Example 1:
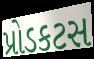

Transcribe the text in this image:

પ્રોડકટસ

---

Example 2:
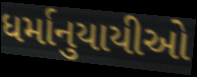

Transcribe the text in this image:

ધર્માનુયાયીઓ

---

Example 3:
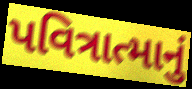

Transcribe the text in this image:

પવિત્રાત્માનું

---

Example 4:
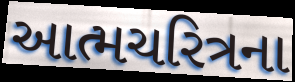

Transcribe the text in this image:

આત્મચરિત્રના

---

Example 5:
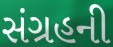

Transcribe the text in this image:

સંગ્રહની